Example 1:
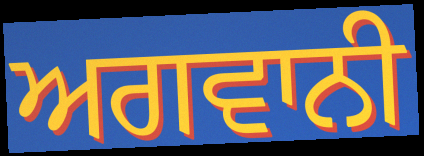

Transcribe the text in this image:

ਅਗਵਾਨੀ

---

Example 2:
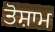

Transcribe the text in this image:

ਤੋਸ਼ਾਮ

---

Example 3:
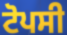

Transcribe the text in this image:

ਟੋਪਸੀ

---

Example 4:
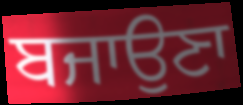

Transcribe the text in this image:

ਬਜਾਉਣਾ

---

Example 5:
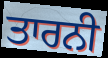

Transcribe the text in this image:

ਤਾਰਨੀ